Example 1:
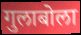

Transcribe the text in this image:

गुलाबोला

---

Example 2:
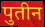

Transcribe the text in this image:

पुतीन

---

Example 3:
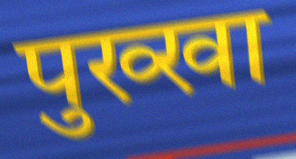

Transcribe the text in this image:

पुख्खा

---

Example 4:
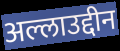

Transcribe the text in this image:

अल्लाउद्दीन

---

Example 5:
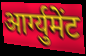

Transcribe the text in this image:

आर्ग्युमेंट